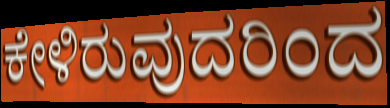
ಕೇಳಿರುವುದರಿಂದ